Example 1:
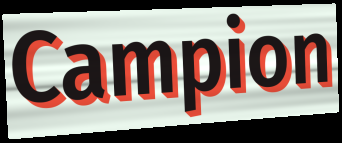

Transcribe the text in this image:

Campion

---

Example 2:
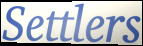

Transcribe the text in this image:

Settlers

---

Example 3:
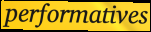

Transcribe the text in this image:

performatives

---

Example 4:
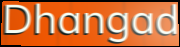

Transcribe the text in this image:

Dhangad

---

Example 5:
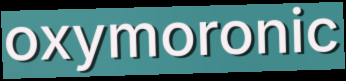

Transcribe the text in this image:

oxymoronic